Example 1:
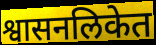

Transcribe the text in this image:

श्वासनलिकेत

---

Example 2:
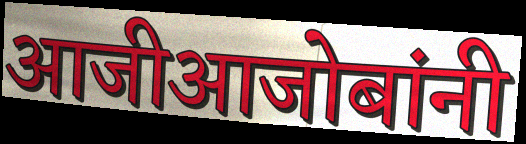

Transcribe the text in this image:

आजीआजोबांनी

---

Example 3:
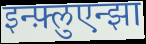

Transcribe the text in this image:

इन्फ़्लुएन्झा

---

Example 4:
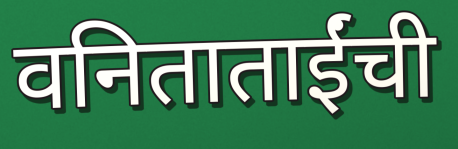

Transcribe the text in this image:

वनिताताईंची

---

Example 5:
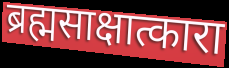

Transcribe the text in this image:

ब्रह्मसाक्षात्कारा